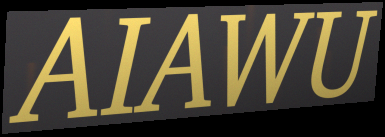
AIAWU